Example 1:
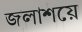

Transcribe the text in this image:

জলাশয়ে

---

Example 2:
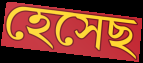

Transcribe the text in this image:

হেসেছ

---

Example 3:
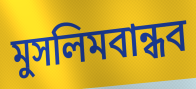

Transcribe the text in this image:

মুসলিমবান্ধব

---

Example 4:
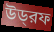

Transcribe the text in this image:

উড্‌রফ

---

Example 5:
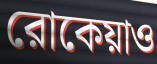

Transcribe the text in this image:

রোকেয়াও